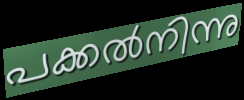
പക്കൽനിന്നു